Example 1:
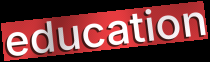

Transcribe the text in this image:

education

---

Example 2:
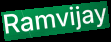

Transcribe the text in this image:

Ramvijay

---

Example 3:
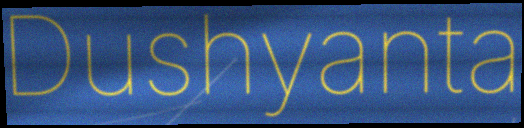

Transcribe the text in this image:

Dushyanta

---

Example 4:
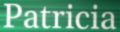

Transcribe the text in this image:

Patricia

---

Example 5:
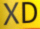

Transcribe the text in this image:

XD